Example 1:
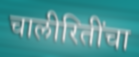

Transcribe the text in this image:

चालीरितींचा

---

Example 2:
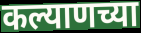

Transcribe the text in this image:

कल्याणच्या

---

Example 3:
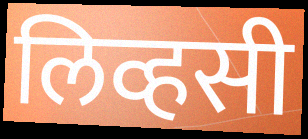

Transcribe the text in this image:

लिव्हसी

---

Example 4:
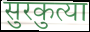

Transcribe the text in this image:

सुरकुत्या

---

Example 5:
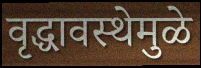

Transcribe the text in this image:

वृद्धावस्थेमुळे